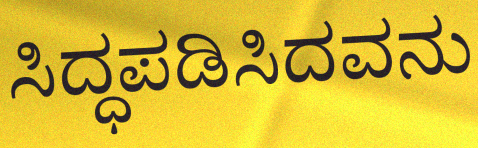
ಸಿದ್ಧಪಡಿಸಿದವನು